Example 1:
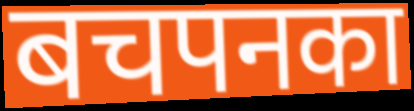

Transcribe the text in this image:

बचपनका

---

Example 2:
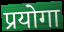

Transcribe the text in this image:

प्रयोगा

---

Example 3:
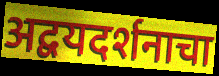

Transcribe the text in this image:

अद्वयदर्शनाचा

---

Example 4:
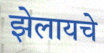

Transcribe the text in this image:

झेलायचे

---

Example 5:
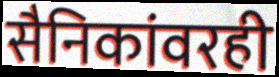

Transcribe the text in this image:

सैनिकांवरही